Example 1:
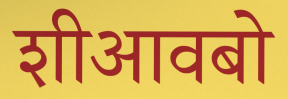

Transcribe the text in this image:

शीआवबो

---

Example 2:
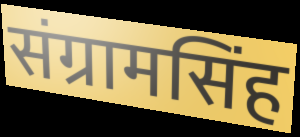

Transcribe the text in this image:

संग्रामसिंह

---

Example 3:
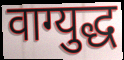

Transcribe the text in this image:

वाग्युद्ध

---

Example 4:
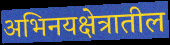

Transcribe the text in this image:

अभिनयक्षेत्रातील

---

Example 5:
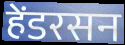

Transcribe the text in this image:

हेंडरसन